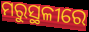
ମରୁସ୍ଥଳୀରେ